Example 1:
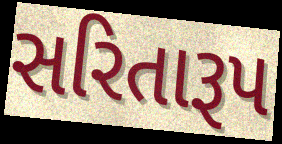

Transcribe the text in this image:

સરિતારૂપ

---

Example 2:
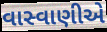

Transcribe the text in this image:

વાસ્વાણીએ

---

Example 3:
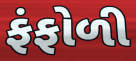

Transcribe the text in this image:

ફંફોળી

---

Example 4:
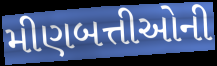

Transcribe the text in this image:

મીણબત્તીઓની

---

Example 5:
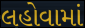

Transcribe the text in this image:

લહોવામાં